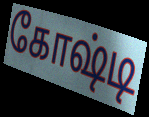
கோஷ்டி